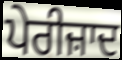
ਪੇਰੀਜ਼ਾਦ